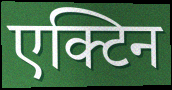
एक्टिन